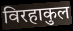
विरहाकुल